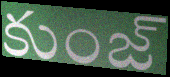
కుంజ్